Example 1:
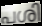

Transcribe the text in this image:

പശി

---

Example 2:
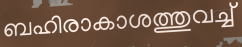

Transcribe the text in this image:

ബഹിരാകാശത്തുവച്ച്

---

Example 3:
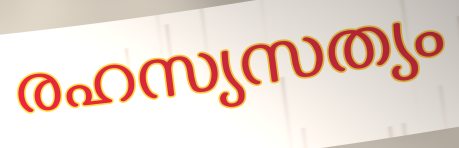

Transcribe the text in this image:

രഹസ്യസത്യം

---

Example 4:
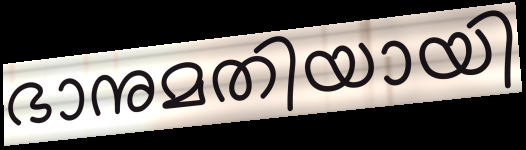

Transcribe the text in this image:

ഭാനുമതിയായി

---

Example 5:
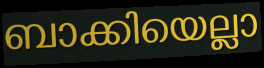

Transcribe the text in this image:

ബാക്കിയെല്ലാ